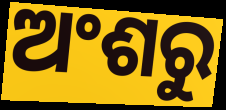
ଅଂଶରୁ